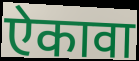
ऐकावा